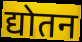
द्योतन